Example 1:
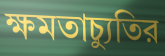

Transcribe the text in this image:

ক্ষমতাচ্যুতির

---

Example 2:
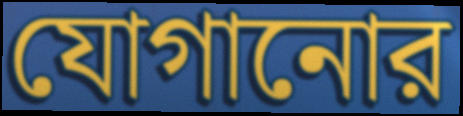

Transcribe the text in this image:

যোগানোর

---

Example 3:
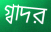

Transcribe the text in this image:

গ্বাদর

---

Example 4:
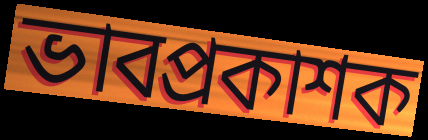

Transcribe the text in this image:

ভাবপ্রকাশক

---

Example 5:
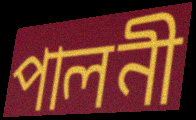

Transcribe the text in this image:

পালনী